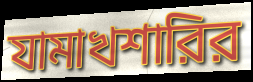
যামাখশারির